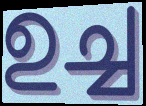
ഉച്ച